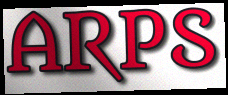
ARPS